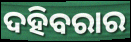
ଦହିବରାର